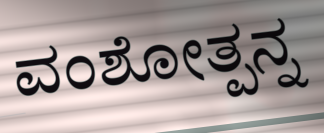
ವಂಶೋತ್ಪನ್ನ